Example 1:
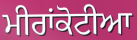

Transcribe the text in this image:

ਮੀਰਾਂਕੋਟੀਆ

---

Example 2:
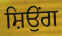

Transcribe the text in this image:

ਸ਼ਿਉਂਗ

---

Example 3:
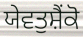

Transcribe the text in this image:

ਯੇਵਤੁਸ਼ੈਂਕੋ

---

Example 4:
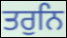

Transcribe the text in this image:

ਤਰੁਨਿ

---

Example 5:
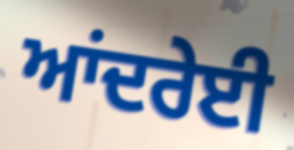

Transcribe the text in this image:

ਆਂਦਰੇਈ